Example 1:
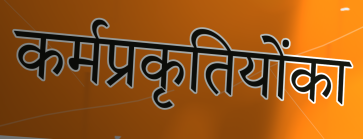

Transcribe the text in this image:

कर्मप्रकृतियोंका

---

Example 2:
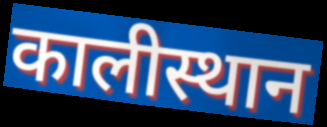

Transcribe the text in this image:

कालीस्थान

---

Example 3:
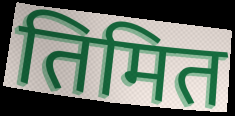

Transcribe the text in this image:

तिमित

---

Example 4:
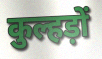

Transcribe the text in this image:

कुल्हड़ों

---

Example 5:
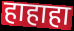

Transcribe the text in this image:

हाहाहा